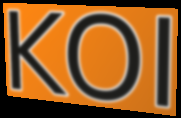
KOI